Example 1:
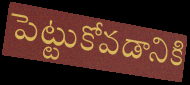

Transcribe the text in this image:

పెట్టుకోవడానికి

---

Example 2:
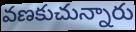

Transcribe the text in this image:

వణకుచున్నారు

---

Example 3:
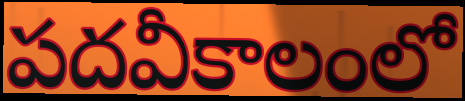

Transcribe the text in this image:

పదవీకాలంలో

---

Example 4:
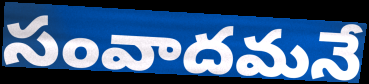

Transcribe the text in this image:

సంవాదమనే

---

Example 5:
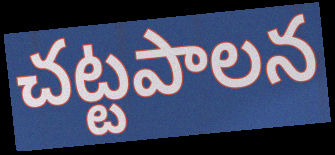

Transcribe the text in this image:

చట్టపాలన